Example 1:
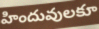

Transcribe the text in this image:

హిందువులకూ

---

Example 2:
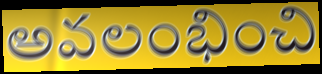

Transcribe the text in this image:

అవలంభించి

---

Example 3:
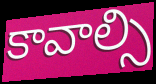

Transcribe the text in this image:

కావాల్సి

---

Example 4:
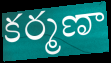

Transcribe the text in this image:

కర్మణా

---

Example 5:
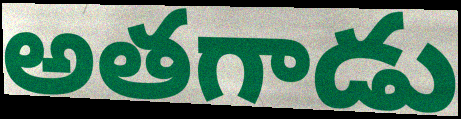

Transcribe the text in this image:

అతగాడు